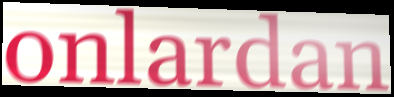
onlardan